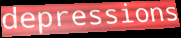
depressions